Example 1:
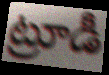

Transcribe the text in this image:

ట్రూడీ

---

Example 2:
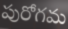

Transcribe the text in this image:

పురోగమ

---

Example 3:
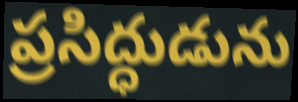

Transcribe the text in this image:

ప్రసిద్ధుడును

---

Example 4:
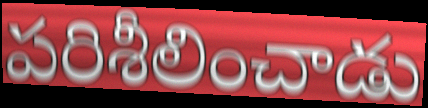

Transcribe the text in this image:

పరిశీలించాడు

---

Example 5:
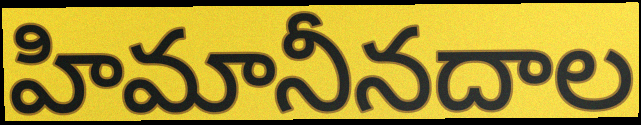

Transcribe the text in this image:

హిమానీనదాల